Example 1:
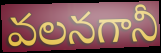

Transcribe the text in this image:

వలనగానీ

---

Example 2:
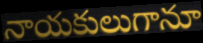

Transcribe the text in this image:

నాయకులుగానూ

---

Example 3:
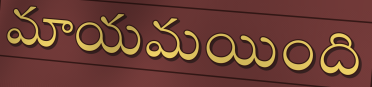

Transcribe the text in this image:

మాయమయింది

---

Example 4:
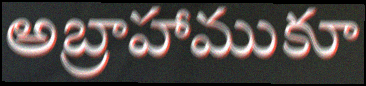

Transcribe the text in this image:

అబ్రాహాముకూ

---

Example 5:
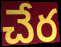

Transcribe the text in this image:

చేర